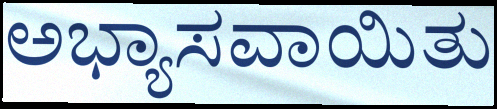
ಅಭ್ಯಾಸವಾಯಿತು